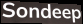
Sondeep